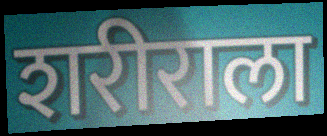
शरीराला